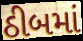
ઠીબમાં